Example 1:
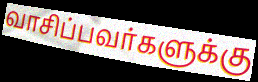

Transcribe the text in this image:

வாசிப்பவர்களுக்கு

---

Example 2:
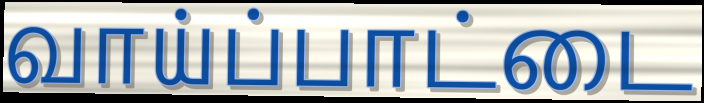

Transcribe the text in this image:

வாய்ப்பாட்டை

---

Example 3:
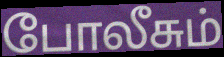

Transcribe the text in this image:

போலீசும்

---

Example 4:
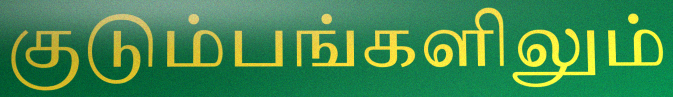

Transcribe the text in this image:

குடும்பங்களிலும்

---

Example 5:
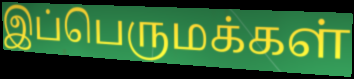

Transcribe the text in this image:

இப்பெருமக்கள்